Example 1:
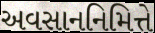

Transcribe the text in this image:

અવસાનનિમિત્તે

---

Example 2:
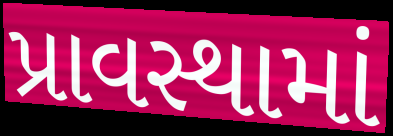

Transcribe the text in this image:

પ્રાવસ્થામાં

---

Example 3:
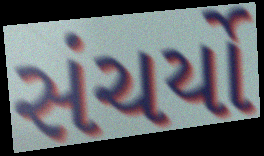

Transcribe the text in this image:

સંચર્યો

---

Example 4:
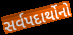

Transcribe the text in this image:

સર્વપદાર્થોનો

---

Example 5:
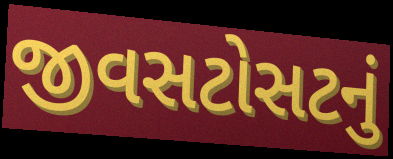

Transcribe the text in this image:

જીવસટોસટનું